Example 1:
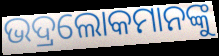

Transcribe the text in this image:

ଭଦ୍ରଲୋକମାନଙ୍କୁ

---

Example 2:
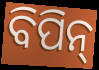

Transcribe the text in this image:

ବିପିନ୍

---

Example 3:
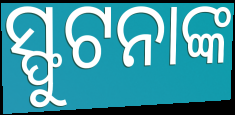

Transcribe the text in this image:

ସ୍ଫୁଟନାଙ୍କ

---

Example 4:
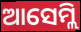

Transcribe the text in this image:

ଆସେମ୍ଲି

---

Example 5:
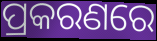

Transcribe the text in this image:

ପ୍ରକରଣରେ